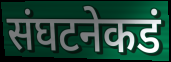
संघटनेकडं